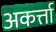
अकर्त्ता